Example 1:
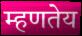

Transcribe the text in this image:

म्हणतेय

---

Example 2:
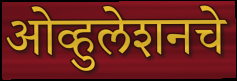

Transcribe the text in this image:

ओव्हुलेशनचे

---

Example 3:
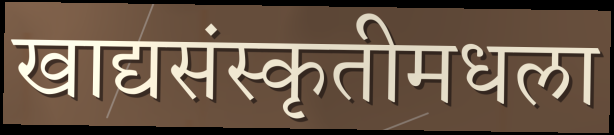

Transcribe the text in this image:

खाद्यसंस्कृतीमधला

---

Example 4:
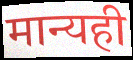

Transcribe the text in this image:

मान्यही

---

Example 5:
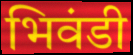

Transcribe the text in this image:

भिवंडी